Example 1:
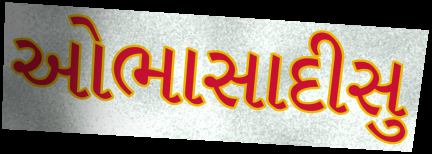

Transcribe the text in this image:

ઓભાસાદીસુ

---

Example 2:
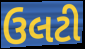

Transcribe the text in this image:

ઉલટી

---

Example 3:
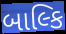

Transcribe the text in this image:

બાલ્કિ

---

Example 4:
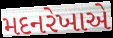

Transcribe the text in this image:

મદનરેખાએ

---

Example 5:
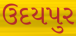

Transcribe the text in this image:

ઉદયપુર